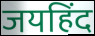
जयहिंद